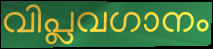
വിപ്ലവഗാനം